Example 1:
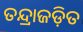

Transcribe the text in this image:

ତନ୍ଦ୍ରାଜଡ଼ିତ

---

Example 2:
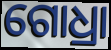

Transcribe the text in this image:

ଗୋଧ୍ରା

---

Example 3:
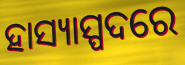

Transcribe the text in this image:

ହାସ୍ୟାସ୍ପଦରେ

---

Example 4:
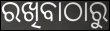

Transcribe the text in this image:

ରଖିବାଠାରୁ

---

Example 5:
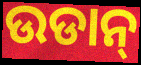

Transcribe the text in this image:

ଉଡାନ୍